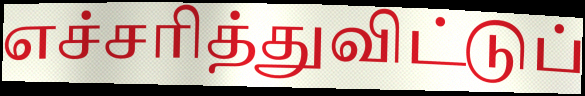
எச்சரித்துவிட்டுப்